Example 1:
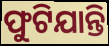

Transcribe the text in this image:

ଫୁଟିଯାନ୍ତି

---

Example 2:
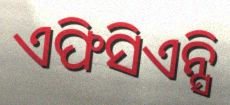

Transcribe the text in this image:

ଏଫିସିଏନ୍ସି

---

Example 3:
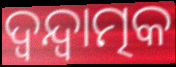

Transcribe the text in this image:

ଦ୍ଵନ୍ଦ୍ଵାତ୍ମକ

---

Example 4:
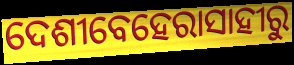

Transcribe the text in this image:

ଦେଶୀବେହେରାସାହୀରୁ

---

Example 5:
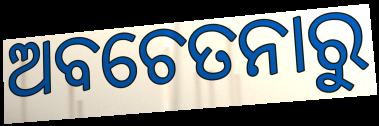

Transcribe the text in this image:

ଅବଚେତନାରୁ